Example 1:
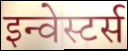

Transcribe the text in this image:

इन्वेस्टर्स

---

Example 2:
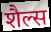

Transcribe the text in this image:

शैल्स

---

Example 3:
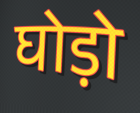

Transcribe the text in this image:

घोड़ो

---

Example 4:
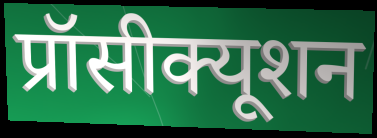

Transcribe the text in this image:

प्रॉसीक्यूशन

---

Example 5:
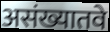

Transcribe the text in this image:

असंख्यातवे